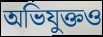
অভিযুক্তও